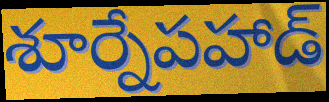
శూర్నేపహాడ్